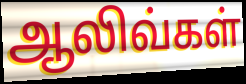
ஆலிவ்கள்